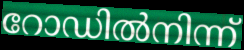
റോഡിൽനിന്ന്